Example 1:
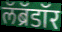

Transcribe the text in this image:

लॅब्रॅडॉर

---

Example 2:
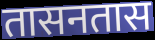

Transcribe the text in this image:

तासनतास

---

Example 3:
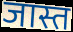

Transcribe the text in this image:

जास्त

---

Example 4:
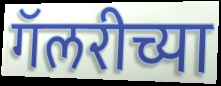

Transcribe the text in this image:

गॅलरीच्या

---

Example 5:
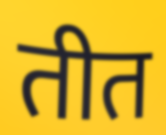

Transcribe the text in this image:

तीत